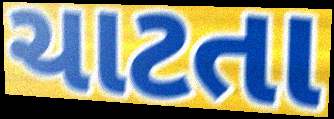
ચાટતા